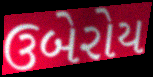
ઉબેરોય